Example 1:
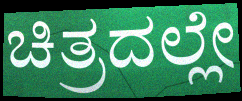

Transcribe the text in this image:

ಚಿತ್ರದಲ್ಲೇ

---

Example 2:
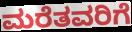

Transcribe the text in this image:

ಮರೆತವರಿಗೆ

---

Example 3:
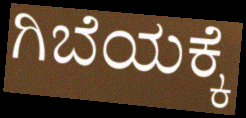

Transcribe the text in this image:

ಗಿಬೆಯಕ್ಕೆ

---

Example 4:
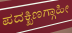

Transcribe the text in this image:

ಪದಕ್ಖಿಣಗ್ಗಾಹೀ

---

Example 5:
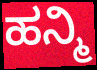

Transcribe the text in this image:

ಹನ್ಮಿ